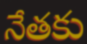
నేతకు